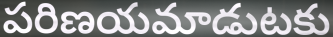
పరిణయమాడుటకు